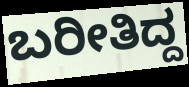
ಬರೀತಿದ್ದ